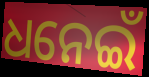
ଧନେଇଁ